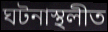
ঘটনাস্থলীত